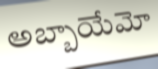
అబ్బాయేమో